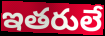
ఇతరులే